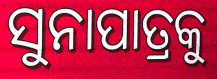
ସୁନାପାତ୍ରକୁ